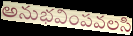
అనుభవింపవలసి